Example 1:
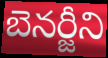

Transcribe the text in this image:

బెనర్జీని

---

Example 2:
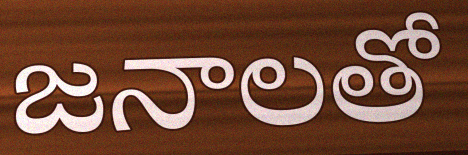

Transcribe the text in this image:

జనాలతో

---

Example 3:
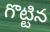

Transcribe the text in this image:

గొట్టిన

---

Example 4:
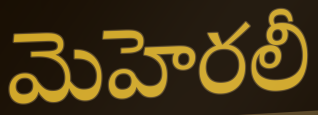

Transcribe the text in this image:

మెహెరలీ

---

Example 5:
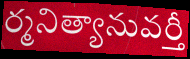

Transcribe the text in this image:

ర్మనిత్యానువర్తీ